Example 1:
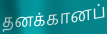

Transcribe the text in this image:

தனக்கானப்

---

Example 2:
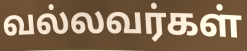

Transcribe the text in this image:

வல்லவர்கள்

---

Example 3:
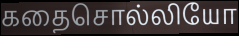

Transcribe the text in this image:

கதைசொல்லியோ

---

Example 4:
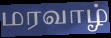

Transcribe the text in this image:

மரவாழ்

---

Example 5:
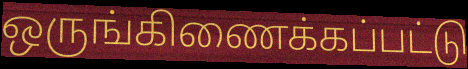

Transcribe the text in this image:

ஒருங்கிணைக்கப்பட்டு